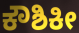
ಕೌಶಿಕೀ